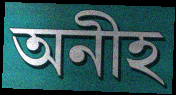
অনীহ